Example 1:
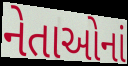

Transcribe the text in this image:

નેતાઓનાં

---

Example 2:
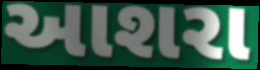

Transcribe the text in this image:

આશરા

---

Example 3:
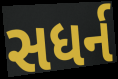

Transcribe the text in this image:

સધર્ન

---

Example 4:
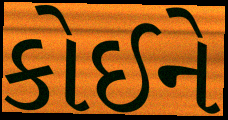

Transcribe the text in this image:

કોઈને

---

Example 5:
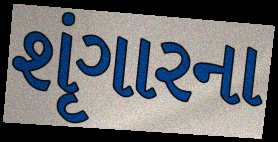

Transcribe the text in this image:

શૃંગારના